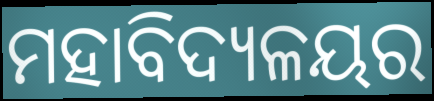
ମହାବିଦ୍ୟଳୟର